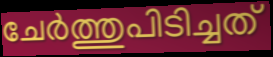
ചേർത്തുപിടിച്ചത്